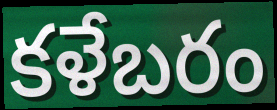
కళేబరం